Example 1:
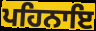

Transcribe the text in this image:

ਪਹਿਨਾਇ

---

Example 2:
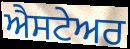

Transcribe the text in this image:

ਐਸਟੇਅਰ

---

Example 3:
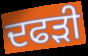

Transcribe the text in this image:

ਦਫੜੀ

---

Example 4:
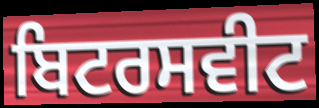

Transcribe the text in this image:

ਬਿਟਰਸਵੀਟ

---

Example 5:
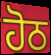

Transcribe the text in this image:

ਹੋਠ